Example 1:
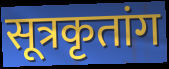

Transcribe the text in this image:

सूत्रकृतांग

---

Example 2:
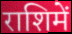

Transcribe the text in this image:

राशिमें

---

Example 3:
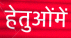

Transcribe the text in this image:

हेतुओंमें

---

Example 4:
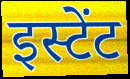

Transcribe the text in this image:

इस्टेंट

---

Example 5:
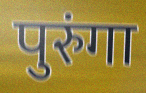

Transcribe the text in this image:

पुरुंगा